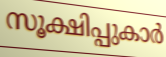
സൂക്ഷിപ്പുകാർ